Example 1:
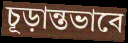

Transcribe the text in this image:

চূড়ান্তভাবে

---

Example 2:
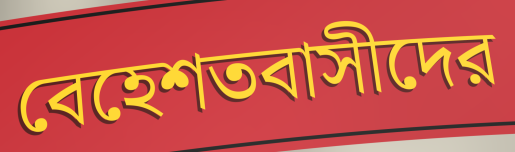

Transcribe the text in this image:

বেহেশতবাসীদের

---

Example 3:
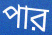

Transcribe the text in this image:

পার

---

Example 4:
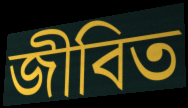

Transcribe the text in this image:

জীবিত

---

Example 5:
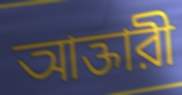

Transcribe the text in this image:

আক্তারী